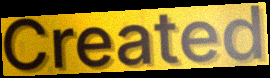
Created